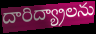
దారిద్య్రాలను